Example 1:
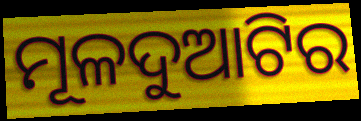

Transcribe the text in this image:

ମୂଳଦୁଆଟିର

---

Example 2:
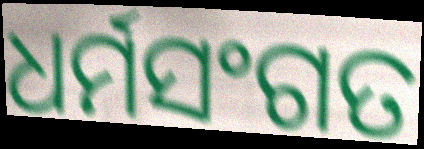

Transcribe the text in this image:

ଧର୍ମସଂଗତ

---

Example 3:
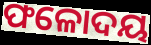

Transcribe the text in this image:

ଫଳୋଦୟ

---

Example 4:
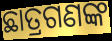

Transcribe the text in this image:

ଛାତ୍ରଗଣଙ୍କ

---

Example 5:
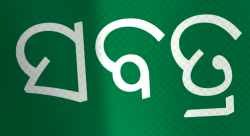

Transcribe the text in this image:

ସବତ୍ର